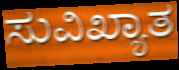
ಸುವಿಖ್ಯಾತ